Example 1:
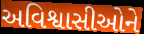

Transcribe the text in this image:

અવિશ્વાસીઓને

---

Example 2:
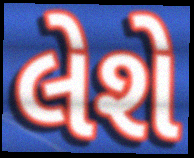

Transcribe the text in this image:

લેશે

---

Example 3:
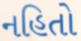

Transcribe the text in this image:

નહિતો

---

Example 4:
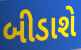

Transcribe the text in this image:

બીડાશે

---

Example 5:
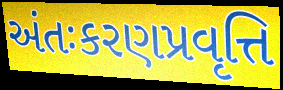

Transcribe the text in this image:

અંતઃકરણપ્રવૃત્તિ